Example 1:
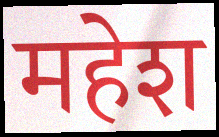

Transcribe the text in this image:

महेश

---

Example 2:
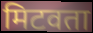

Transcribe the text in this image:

मिटवता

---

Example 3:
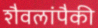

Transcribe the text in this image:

शैवलांपैकी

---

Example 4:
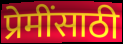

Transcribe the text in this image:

प्रेमींसाठी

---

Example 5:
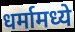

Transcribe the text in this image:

धर्मामध्ये